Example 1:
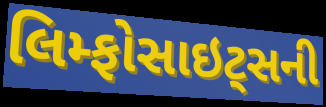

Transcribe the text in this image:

લિમ્ફોસાઇટ્સની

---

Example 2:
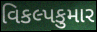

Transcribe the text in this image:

વિકલ્પકુમાર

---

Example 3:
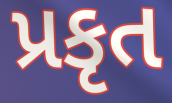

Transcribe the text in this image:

પ્રકૃત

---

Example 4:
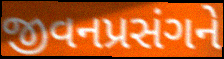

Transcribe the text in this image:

જીવનપ્રસંગને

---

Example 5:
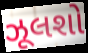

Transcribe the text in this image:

ઝૂલશો